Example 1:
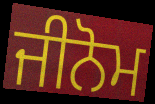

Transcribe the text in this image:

ਜੀਨੋਮ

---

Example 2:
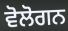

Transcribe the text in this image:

ਵੋਲੋਗਨ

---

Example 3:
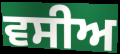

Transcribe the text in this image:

ਵਸੀਅ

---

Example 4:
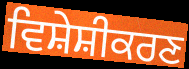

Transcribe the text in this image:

ਵਿਸ਼ੇਸ਼ੀਕਰਣ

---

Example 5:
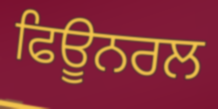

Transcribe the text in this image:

ਫਿਊਨਰਲ